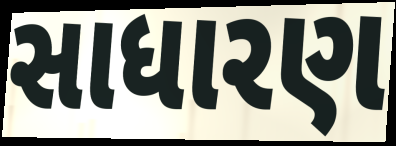
સાધારણ